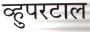
व्हुपरटाल